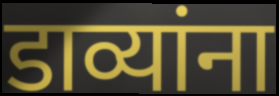
डाव्यांना